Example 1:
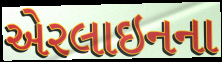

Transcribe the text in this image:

એરલાઇનના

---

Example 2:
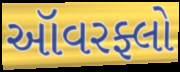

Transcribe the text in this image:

ઑવરફ્લો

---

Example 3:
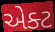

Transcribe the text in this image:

એક્ટ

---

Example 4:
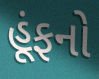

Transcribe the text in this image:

હૂંફનો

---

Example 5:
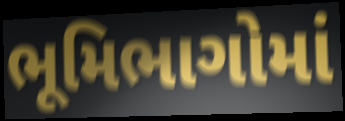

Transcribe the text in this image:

ભૂમિભાગોમાં